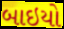
બાઇયો